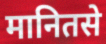
मानितसे